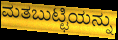
ಮತಬುಟ್ಟಿಯನ್ನು